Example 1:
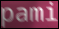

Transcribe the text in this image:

pami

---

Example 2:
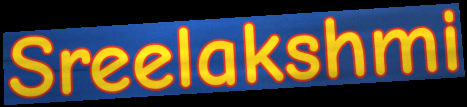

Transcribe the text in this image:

Sreelakshmi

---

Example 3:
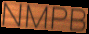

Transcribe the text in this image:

NMPB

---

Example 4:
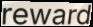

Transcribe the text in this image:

reward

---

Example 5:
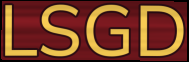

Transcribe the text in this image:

LSGD